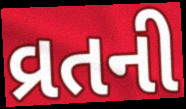
વ્રતની